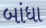
બાંધા